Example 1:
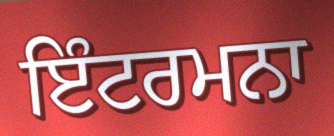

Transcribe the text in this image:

ਇੰਟਰਮਨਾ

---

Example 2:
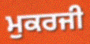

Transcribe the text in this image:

ਮੁਕਰਜੀ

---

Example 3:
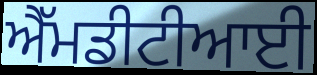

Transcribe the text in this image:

ਐੱਮਡੀਟੀਆਈ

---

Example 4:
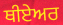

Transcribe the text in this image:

ਥੀਏਅਰ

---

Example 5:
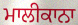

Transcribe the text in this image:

ਮਾਲੀਕਾਨਾ